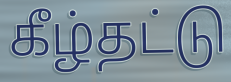
கீழ்தட்டு